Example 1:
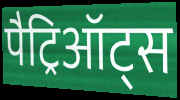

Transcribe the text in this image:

पैट्रिऑट्स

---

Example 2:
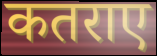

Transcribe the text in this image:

कतराए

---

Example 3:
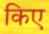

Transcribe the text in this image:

किए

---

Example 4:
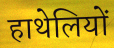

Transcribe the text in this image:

हाथेलियों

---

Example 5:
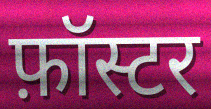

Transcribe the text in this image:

फ़ॉस्टर